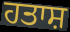
ਹਤਾਸ਼